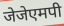
जेजेएमपी